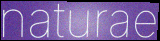
naturae